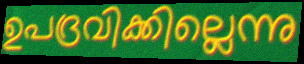
ഉപദ്രവിക്കില്ലെന്നു